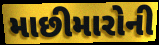
માછીમારોની